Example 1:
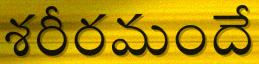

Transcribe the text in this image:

శరీరమందే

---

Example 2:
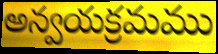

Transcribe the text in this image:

అన్వయక్రమము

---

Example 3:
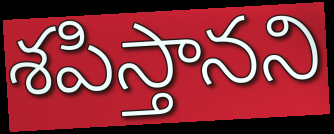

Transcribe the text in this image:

శపిస్తానని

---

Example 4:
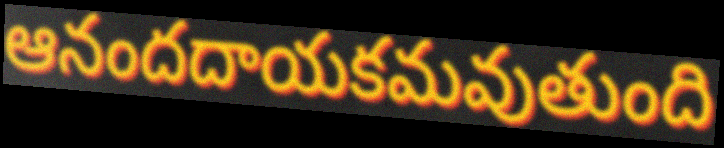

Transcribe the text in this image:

ఆనందదాయకమవుతుంది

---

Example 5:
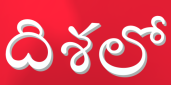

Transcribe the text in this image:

దిశలో